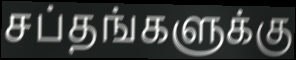
சப்தங்களுக்கு